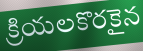
క్రియలకొరకైన